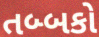
તબ્બકો